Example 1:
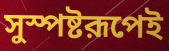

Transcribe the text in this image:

সুস্পষ্টরূপেই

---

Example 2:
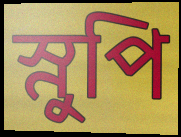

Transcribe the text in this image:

স্নুপি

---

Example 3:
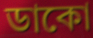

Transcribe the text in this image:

ডাকো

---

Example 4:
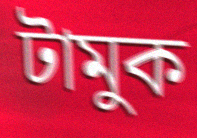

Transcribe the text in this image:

টামুক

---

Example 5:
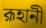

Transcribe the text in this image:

রূহানী